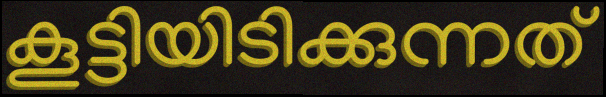
കൂട്ടിയിടിക്കുന്നത്